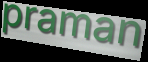
praman